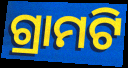
ଗ୍ରାମଟି